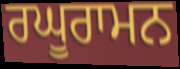
ਰਘੂਰਾਮਨ